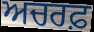
ਅਚਰਫ਼